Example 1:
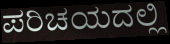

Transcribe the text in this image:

ಪರಿಚಯದಲ್ಲಿ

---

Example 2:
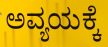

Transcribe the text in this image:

ಅವ್ಯಯಕ್ಕೆ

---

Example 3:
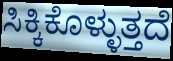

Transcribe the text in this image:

ಸಿಕ್ಕಿಕೊಳ್ಳುತ್ತದೆ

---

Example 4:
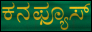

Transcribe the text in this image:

ಕನಫ್ಯೂಸ್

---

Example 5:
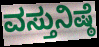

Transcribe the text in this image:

ವಸ್ತುನಿಷ್ಠೆ